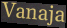
Vanaja